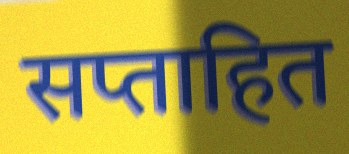
सप्ताहित